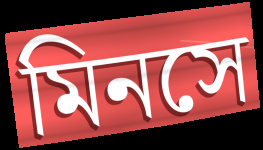
মিনসে